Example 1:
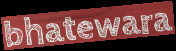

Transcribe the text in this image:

bhatewara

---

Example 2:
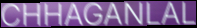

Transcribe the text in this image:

CHHAGANLAL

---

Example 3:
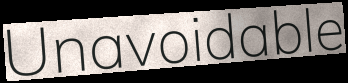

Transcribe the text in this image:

Unavoidable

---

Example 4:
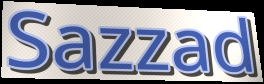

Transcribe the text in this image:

Sazzad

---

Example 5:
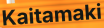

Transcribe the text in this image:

Kaitamaki